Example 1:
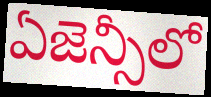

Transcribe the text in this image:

ఏజెన్సీలో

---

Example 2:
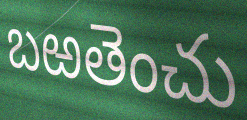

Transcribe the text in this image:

బఱతెంచు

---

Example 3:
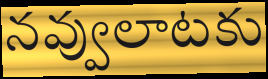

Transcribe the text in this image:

నవ్వులాటకు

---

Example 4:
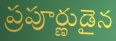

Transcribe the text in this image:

ప్రపూర్ణుడైన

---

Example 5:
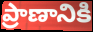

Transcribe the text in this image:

ప్రాణానికి